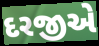
દરજીએ